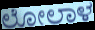
ಲೋಲಾಳ